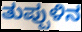
ತುಪ್ಪುಳಿನ